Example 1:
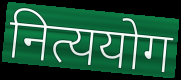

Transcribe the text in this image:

नित्ययोग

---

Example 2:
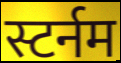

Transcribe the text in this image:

स्टर्नम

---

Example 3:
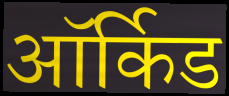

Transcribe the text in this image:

ऑर्किड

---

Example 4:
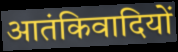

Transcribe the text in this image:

आतंकिवादियों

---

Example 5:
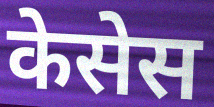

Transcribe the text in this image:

केसेस